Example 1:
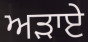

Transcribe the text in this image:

ਅੜਾਏ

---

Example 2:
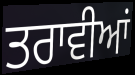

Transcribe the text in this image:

ਤਰਾਵੀਆਂ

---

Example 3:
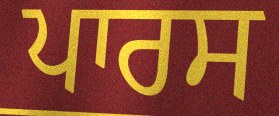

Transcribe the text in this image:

ਪਾਰਸ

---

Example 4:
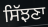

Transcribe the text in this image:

ਸਿੱਝਣਾ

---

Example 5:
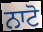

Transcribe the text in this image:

ਨਾਟੋ